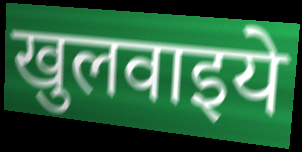
खुलवाइये